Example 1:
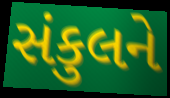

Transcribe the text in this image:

સંકુલને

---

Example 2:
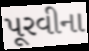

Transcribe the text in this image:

પૂરવીના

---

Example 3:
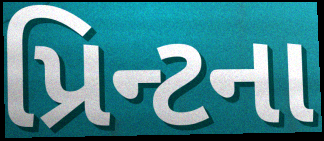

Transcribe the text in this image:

પ્રિન્ટના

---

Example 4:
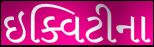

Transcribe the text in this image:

ઇક્વિટીના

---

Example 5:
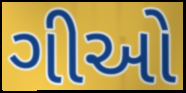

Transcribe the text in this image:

ગીઓ